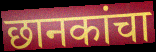
छानकांचा